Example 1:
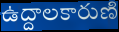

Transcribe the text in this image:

ఉద్దాలకారుణి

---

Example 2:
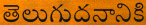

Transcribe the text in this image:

తెలుగుదనానికి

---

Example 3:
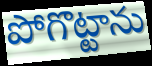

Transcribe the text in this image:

పోగొట్టాను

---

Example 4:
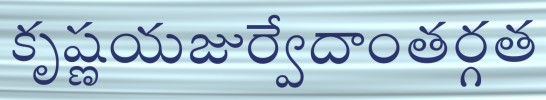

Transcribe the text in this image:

కృష్ణయజుర్వేదాంతర్గత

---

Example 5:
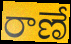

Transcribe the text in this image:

రాణే